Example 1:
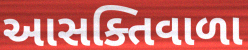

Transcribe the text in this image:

આસક્તિવાળા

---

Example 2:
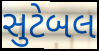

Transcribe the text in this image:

સુટેબલ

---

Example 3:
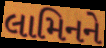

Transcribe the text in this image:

લામિનને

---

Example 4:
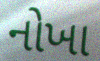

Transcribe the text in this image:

નોખા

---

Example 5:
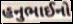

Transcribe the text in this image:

હનુભાઈનો